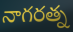
నాగరత్న